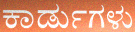
ಕಾರ್ಡುಗಳು